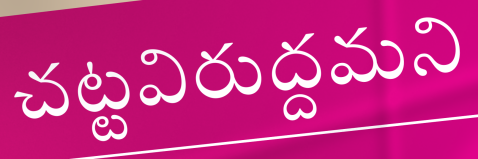
చట్టవిరుద్దమని